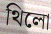
থিলো